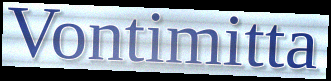
Vontimitta